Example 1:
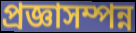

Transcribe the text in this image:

প্রজ্ঞাসম্পন্ন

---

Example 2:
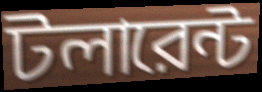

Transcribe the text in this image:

টলারেন্ট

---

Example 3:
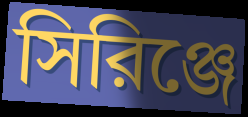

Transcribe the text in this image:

সিরিঞ্জে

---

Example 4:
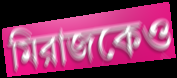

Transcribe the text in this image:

মিরাজকেও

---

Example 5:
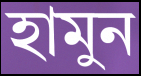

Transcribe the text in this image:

হামুন